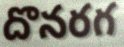
దొనరగ